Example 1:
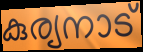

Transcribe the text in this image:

കുര്യനാട്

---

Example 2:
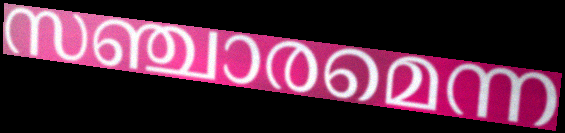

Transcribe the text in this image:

സഞ്ചാരമെന്ന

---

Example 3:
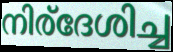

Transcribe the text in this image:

നിര്ദേശിച്ച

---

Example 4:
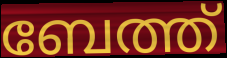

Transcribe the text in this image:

ബേത്ത്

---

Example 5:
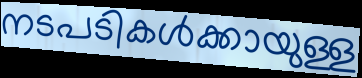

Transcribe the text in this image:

നടപടികൾക്കായുള്ള